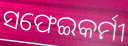
ସଫେଇକର୍ମୀ